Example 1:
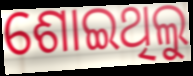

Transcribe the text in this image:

ଶୋଇଥିଲୁ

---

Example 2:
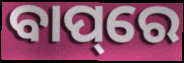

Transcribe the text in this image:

ବାପ୍‌ରେ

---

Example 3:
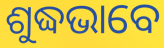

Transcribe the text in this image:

ଶୁଦ୍ଧଭାବେ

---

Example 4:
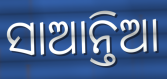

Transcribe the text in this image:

ସାଆନ୍ତିଆ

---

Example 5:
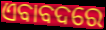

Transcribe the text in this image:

ଏବାବଦରେ